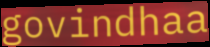
govindhaa